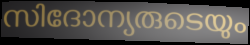
സിദോന്യരുടെയും